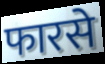
फारसे